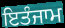
ਇਤੰਜਾਮ